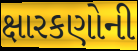
ક્ષારકણોની